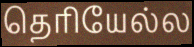
தெரியேல்ல